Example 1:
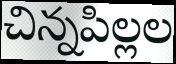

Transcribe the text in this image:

చిన్నపిల్లల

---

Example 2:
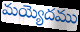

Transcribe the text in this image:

మయ్యెదము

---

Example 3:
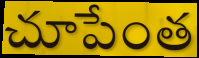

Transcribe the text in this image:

చూపేంత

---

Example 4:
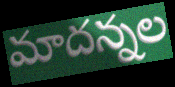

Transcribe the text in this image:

మాదన్నల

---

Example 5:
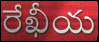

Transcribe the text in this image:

రేఖీయ